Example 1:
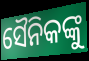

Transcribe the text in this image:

ସୈନିକଙ୍କୁ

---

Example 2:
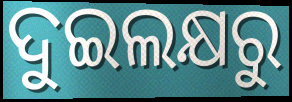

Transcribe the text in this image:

ଦୁଇଲକ୍ଷରୁ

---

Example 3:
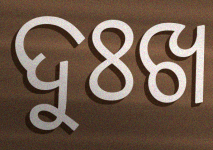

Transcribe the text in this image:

ଦୁଃଖ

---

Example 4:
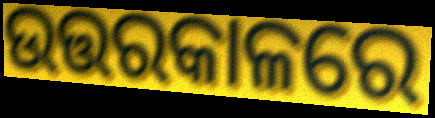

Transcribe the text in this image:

ଉତ୍ତରକାଳରେ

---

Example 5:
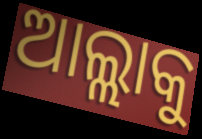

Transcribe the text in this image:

ଆଲ୍ଲାକୁ